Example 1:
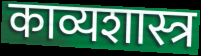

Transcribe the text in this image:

काव्यशास्त्र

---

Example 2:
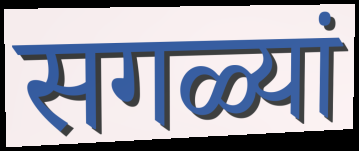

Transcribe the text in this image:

सगळ्यां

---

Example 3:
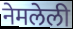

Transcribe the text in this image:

नेमलेली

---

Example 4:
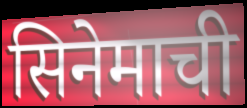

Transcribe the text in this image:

सिनेमाची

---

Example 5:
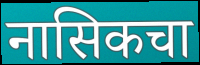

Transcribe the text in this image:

नासिकचा